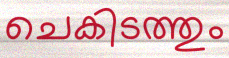
ചെകിടത്തും